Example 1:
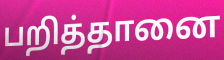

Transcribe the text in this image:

பறித்தானை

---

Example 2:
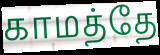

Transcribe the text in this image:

காமத்தே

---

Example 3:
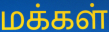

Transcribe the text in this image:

மக்கள்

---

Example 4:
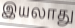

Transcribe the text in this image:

இயலாது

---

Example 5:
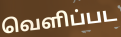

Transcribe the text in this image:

வெளிப்பட